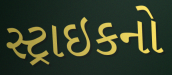
સ્ટ્રાઇકનો